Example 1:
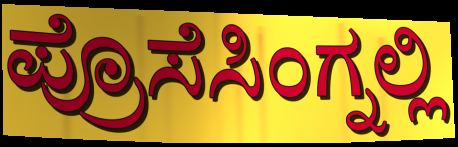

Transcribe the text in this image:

ಪ್ರೊಸೆಸಿಂಗ್ನಲ್ಲಿ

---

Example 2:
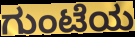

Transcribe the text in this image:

ಗುಂಟೆಯ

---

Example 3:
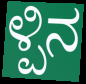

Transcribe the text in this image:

ಳ್ಪಿನ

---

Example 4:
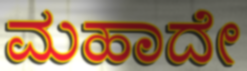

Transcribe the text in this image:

ಮಹಾದೇ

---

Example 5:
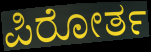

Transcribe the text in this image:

ಪಿರೋರ್ತ